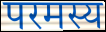
परमस्य